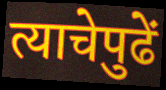
त्याचेपुढें